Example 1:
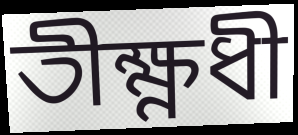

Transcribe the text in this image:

তীক্ষ্ণধী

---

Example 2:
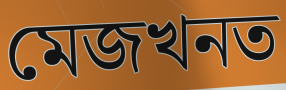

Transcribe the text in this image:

মেজখনত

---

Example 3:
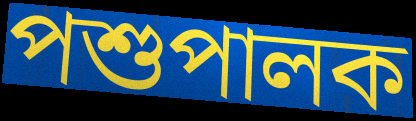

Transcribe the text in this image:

পশুপালক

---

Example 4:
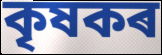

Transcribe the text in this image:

কৃষকৰ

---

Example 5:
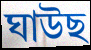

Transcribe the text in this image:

ঘাউছ